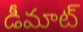
డీమాట్